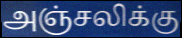
அஞ்சலிக்கு